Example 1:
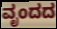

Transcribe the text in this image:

ವೃಂದದ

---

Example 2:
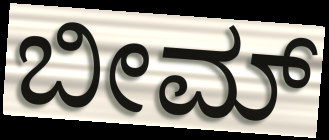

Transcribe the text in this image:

ಬೀಮ್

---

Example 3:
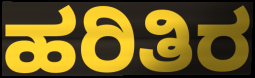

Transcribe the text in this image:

ಹರಿತಿರ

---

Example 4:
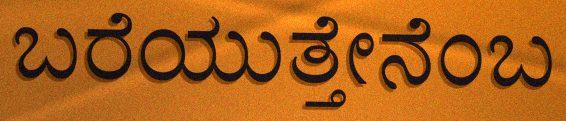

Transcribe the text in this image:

ಬರೆಯುತ್ತೇನೆಂಬ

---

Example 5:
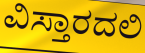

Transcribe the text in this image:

ವಿಸ್ತಾರದಲಿ